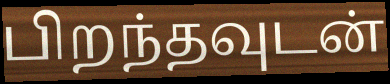
பிறந்தவுடன்